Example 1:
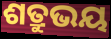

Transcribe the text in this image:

ଶତ୍ରୁଭୟ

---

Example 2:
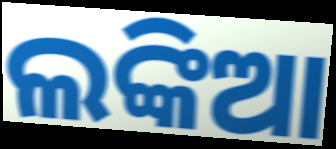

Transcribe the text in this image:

ଲଙ୍କିଆ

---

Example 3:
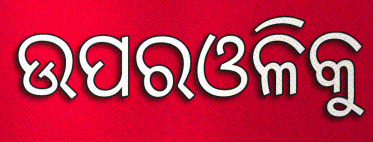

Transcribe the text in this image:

ଉପରଓଳିକୁ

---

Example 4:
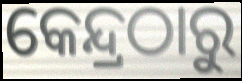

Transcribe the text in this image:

କେନ୍ଦ୍ରଠାରୁ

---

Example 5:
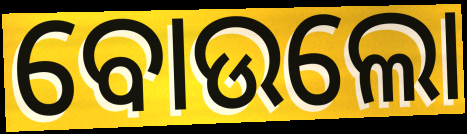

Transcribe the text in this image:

ବୋଉଲୋ